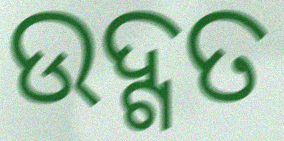
ଉଦ୍ଗତ